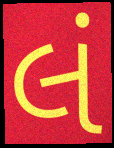
લં